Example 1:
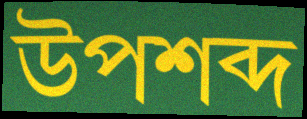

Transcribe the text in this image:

উপশব্দ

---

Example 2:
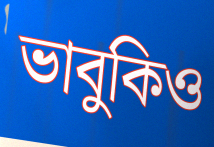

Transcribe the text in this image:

ভাবুকিও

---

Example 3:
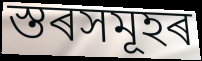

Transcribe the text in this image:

স্তৰসমূহৰ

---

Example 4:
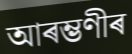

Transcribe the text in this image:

আৰম্ভণীৰ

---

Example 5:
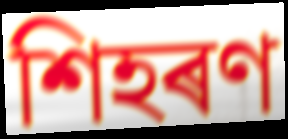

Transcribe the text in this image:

শিহৰণ